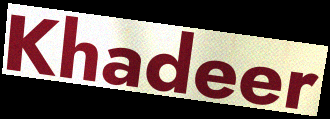
Khadeer